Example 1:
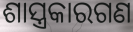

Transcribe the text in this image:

ଶାସ୍ତ୍ରକାରଗଣ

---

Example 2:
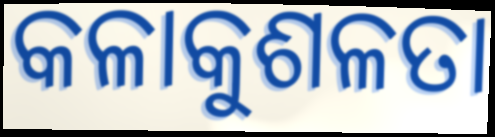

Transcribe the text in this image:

କଳାକୁଶଳତା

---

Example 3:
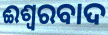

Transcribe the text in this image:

ଈଶ୍ୱରବାଦ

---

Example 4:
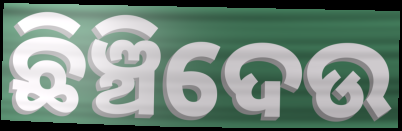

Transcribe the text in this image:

ଛିଞ୍ଚିଦେଉ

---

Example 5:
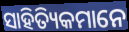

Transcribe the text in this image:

ସାହିତ୍ୟିକମାନେ